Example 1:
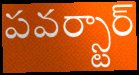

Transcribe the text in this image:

పవర్స్టార్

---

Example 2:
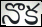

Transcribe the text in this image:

నొక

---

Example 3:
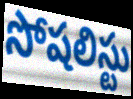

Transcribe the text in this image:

సోషలిస్టు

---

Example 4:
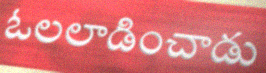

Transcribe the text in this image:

ఓలలాడించాడు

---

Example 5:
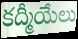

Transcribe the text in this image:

కద్మీయేలు